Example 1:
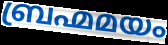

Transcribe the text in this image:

ബ്രഹ്മമയം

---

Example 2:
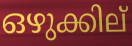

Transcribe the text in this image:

ഒഴുക്കില്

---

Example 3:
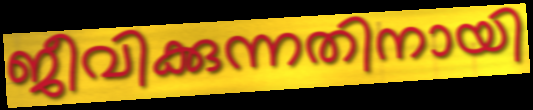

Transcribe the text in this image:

ജീവിക്കുന്നതിനായി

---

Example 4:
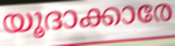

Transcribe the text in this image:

യൂദാക്കാരേ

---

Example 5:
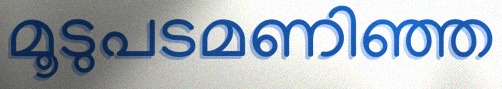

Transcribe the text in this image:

മൂടുപടമണിഞ്ഞ